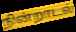
நின்றாடல்